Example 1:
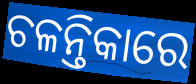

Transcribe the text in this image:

ଚଳନ୍ତିକାରେ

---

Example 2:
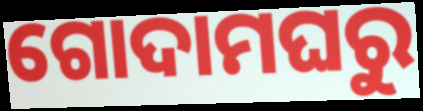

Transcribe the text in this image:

ଗୋଦାମଘରୁ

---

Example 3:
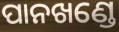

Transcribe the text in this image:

ପାନଖଣ୍ଡେ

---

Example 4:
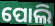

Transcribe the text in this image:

ପୋଲି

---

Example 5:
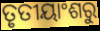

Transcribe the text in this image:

ତୃତୀୟାଂଶରୁ